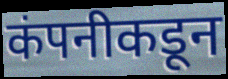
कंपनीकडून